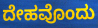
ದೇಹವೊಂದು